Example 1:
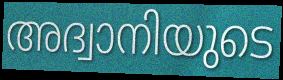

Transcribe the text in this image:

അദ്വാനിയുടെ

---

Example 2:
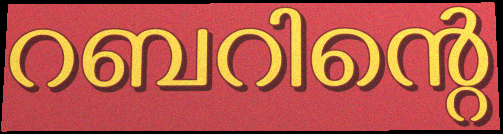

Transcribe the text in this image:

റബറിന്റെ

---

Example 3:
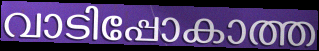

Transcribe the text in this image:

വാടിപ്പോകാത്ത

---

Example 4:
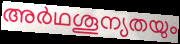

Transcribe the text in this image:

അർഥശൂന്യതയും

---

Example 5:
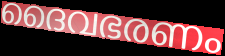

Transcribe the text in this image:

ദൈവഭരണം